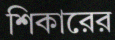
শিকারের